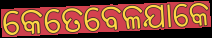
କେତେବେଳଯାକେ